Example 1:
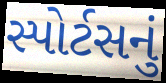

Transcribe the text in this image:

સ્પોર્ટસનું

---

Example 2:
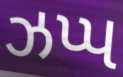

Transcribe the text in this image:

ઝપ્પ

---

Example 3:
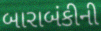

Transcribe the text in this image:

બારાબંકીની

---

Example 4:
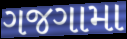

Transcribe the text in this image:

ગજગામા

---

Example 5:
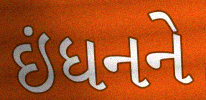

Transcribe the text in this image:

ઇંધનને